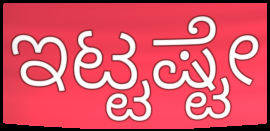
ಇಟ್ಟಷ್ಟೇ